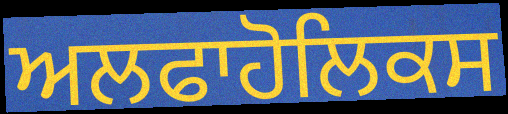
ਅਲਫਾਹੋਲਿਕਸ